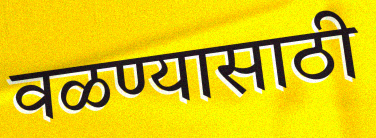
वळण्यासाठी